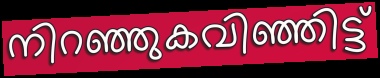
നിറഞ്ഞുകവിഞ്ഞിട്ട്